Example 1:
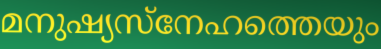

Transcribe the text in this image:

മനുഷ്യസ്നേഹത്തെയും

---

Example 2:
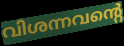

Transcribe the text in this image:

വിശന്നവന്റെ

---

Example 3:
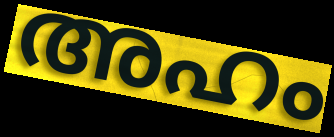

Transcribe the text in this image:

അഹം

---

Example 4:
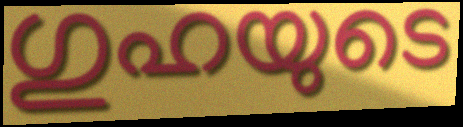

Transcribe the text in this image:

ഗുഹയുടെ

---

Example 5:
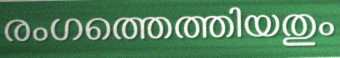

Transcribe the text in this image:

രംഗത്തെത്തിയതും